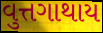
વુત્તગાથાય